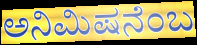
ಅನಿಮಿಷನೆಂಬ